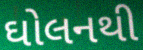
ઘોલનથી